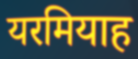
यरमियाह